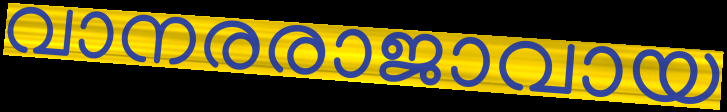
വാനരരാജാവായ